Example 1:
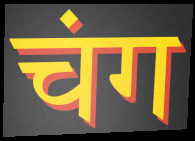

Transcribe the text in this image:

चंग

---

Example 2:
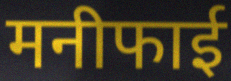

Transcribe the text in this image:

मनीफाई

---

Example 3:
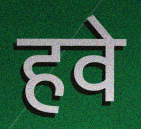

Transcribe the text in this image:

हवे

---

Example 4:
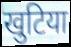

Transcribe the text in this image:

खुटिया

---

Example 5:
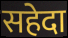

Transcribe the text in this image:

सहेदा